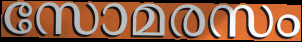
സോമരസം